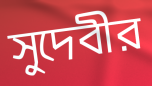
সুদেবীর